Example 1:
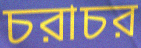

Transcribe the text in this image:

চরাচর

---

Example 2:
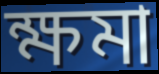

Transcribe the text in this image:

ক্ষমা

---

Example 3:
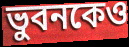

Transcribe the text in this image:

ভুবনকেও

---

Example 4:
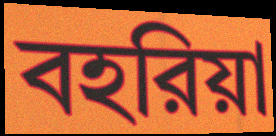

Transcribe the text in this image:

বহরিয়া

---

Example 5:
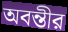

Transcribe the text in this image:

অবন্তীর